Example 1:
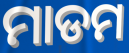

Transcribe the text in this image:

ମାଡମ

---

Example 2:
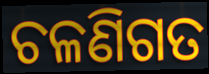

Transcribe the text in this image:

ଚଳଣିଗତ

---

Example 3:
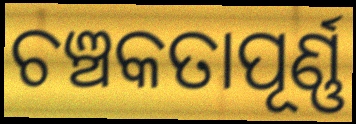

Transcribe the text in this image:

ଚଞ୍ଚକତାପୂର୍ଣ୍ଣ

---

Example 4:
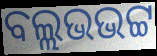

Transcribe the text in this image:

ବଲ୍ଲଭଭଟ୍ଟ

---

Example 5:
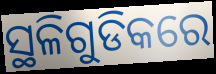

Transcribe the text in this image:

ସ୍ଥଳିଗୁଡିକରେ